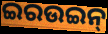
ଇରଉଇନ୍